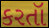
કરતૉ